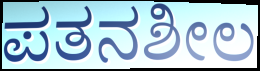
ಪತನಶೀಲ